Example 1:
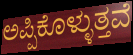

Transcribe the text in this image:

ಅಪ್ಪಿಕೊಳ್ಳುತ್ತವೆ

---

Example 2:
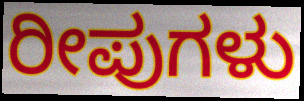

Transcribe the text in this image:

ರೀಪುಗಳು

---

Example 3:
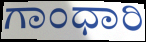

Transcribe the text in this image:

ಗಾಂಧಾರಿ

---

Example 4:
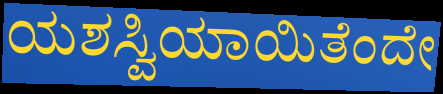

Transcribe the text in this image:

ಯಶಸ್ವಿಯಾಯಿತೆಂದೇ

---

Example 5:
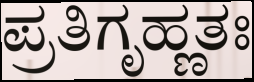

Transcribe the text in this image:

ಪ್ರತಿಗೃಹ್ಣತಃ